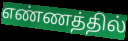
எண்ணத்தில்